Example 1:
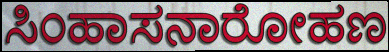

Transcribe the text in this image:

ಸಿಂಹಾಸನಾರೋಹಣ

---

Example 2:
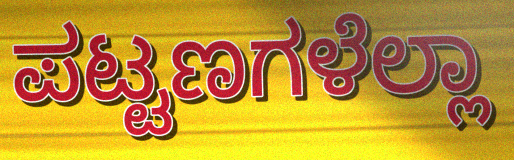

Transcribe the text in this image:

ಪಟ್ಟಣಗಳೆಲ್ಲಾ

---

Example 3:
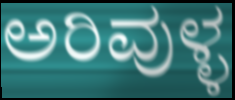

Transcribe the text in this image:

ಅರಿವುಳ್ಳ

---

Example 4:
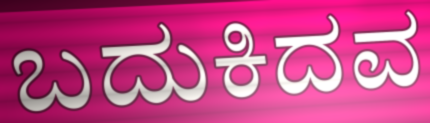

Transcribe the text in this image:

ಬದುಕಿದವ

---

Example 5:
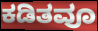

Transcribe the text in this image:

ಕಡಿತವೂ